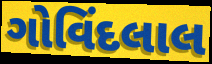
ગોવિંદલાલ